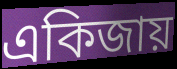
একিজায়